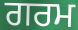
ਗਰਮ